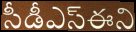
సీడీఎస్ఈని